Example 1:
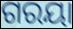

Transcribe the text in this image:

ଗରୟା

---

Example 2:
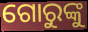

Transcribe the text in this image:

ଗୋରୁଙ୍କୁ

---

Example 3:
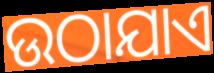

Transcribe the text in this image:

ଉଠାଯାଏ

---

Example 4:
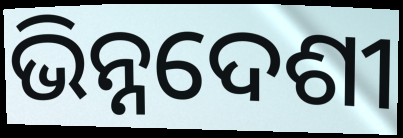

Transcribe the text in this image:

ଭିନ୍ନଦେଶୀ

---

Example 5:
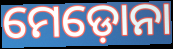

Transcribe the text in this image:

ମେଡ଼ୋନା